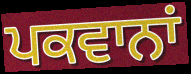
ਪਕਵਾਨਾਂ